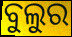
ବୁଲୁର